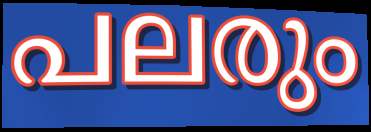
പലരും